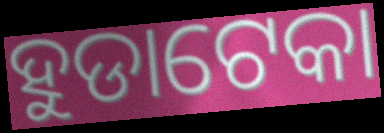
ହୁଡାଟେକା